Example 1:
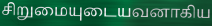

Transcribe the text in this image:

சிறுமையுடையவனாகிய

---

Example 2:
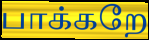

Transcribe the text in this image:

பாக்கறே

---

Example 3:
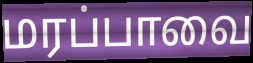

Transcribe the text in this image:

மரப்பாவை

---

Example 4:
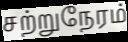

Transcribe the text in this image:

சற்றுநேரம்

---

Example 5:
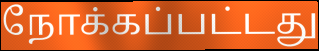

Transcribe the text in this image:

நோக்கப்பட்டது